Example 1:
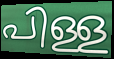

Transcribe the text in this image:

പിള്ള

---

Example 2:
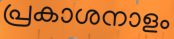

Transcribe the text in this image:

പ്രകാശനാളം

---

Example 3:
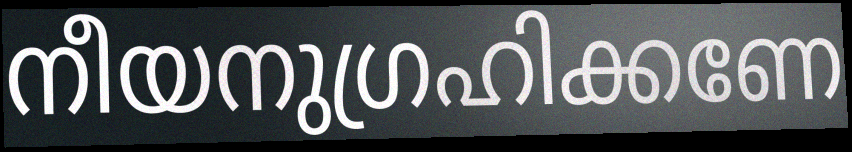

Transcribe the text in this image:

നീയനുഗ്രഹിക്കണേ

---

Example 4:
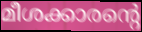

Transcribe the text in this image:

മീശക്കാരന്റെ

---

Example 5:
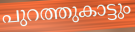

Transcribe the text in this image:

പുറത്തുകാട്ടും